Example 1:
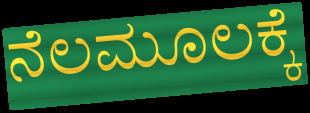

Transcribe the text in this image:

ನೆಲಮೂಲಕ್ಕೆ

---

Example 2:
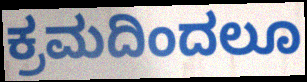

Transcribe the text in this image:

ಕ್ರಮದಿಂದಲೂ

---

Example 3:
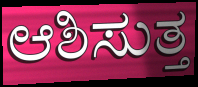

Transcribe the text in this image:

ಆಶಿಸುತ್ತ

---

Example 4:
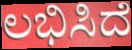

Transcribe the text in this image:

ಲಭಿಸಿದೆ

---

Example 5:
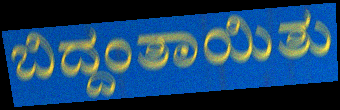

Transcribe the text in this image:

ಬಿದ್ದಂತಾಯಿತು